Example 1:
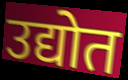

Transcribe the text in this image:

उद्योत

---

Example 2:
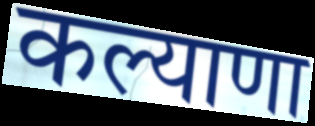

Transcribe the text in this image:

कल्याणा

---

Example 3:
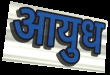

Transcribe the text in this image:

आयुध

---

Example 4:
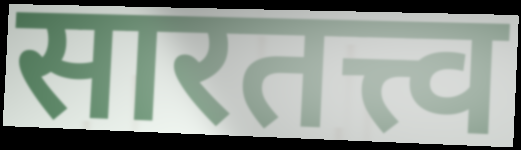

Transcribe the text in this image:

सारतत्त्व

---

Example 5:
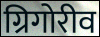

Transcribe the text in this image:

ग्रिगोरीव